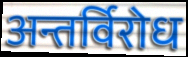
अन्तर्विरोध